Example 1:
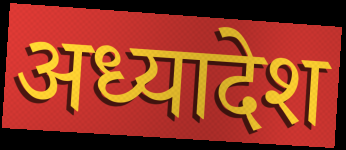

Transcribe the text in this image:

अध्यादेश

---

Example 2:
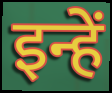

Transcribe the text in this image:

इन्हें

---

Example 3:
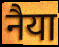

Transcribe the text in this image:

नैया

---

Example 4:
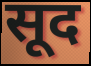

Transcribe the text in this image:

सूद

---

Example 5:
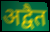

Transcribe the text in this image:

अद्वैत